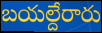
బయల్దేరారు